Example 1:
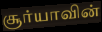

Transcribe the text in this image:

சூர்யாவின்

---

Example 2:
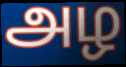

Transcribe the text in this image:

அழ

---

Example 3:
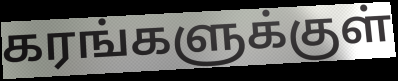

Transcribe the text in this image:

கரங்களுக்குள்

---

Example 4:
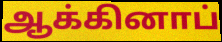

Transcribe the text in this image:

ஆக்கினாப்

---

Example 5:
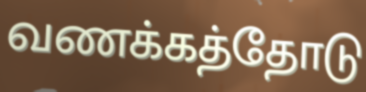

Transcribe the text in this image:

வணக்கத்தோடு